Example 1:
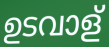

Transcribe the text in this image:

ഉടവാള്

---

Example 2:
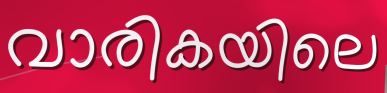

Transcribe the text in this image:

വാരികയിലെ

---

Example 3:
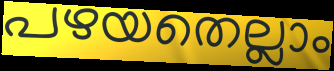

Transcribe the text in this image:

പഴയതെല്ലാം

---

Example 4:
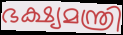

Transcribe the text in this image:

ഭക്ഷ്യമന്ത്രി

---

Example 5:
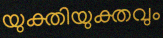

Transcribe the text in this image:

യുക്തിയുക്തവും